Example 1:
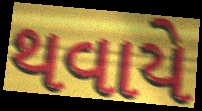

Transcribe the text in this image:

થવાયે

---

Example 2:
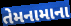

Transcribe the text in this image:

તેમનામાના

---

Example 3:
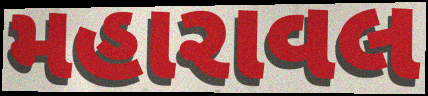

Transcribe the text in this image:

મહારાવલ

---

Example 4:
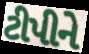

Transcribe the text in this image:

ટીપીને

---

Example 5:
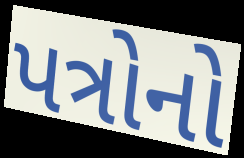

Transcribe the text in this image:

પત્રોનો